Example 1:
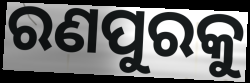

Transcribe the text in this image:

ରଣପୁରକୁ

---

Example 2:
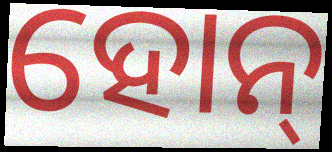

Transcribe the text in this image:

ହୋନ୍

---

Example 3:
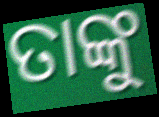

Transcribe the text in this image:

ତାଙ୍କୁ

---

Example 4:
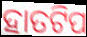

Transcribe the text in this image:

ହାତଟିପ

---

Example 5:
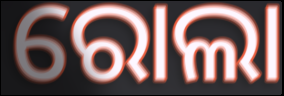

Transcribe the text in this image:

ରୋଲା